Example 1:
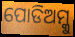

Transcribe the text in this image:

ପୋଡିଅମ୍କୁ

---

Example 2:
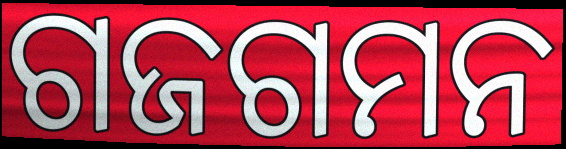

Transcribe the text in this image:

ଗଜଗମନ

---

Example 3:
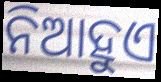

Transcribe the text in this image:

ନିଆହୁଏ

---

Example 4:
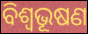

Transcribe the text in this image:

ବିଶ୍ବଭୂଷଣ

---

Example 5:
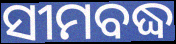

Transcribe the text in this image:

ସୀମବଦ୍ଧ